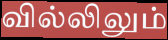
வில்லிலும்